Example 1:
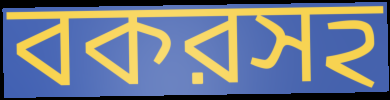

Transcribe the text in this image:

বকরসহ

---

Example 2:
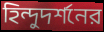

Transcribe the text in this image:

হিন্দুদর্শনের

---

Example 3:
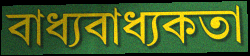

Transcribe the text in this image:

বাধ্যবাধ্যকতা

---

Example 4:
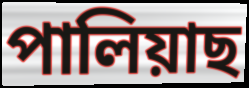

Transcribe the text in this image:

পালিয়াছ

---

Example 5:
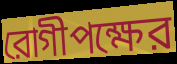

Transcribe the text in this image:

রোগীপক্ষের